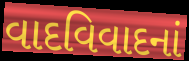
વાદવિવાદનાં